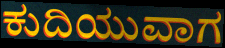
ಕುದಿಯುವಾಗ